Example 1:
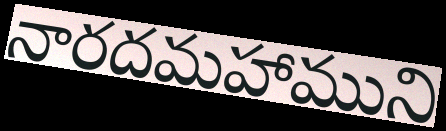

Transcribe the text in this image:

నారదమహాముని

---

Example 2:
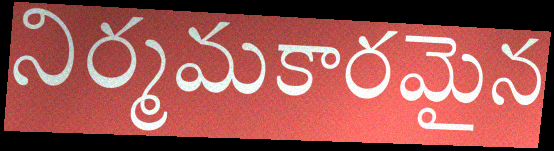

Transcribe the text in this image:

నిర్మమకారమైన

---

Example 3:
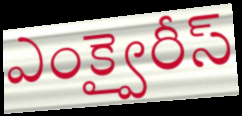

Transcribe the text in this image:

ఎంక్వైరీస్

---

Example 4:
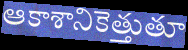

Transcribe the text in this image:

ఆకాశానికెత్తుతూ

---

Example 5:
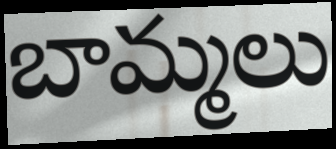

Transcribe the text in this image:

బామ్మలు